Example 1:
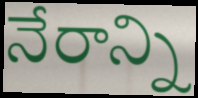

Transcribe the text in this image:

నేరాన్ని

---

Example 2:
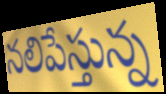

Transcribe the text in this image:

నలిపేస్తున్న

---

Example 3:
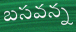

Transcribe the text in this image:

బసవన్న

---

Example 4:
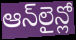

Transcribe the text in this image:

ఆన్‌లైన్లో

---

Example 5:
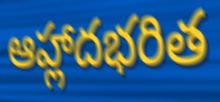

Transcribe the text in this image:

ఆహ్లాదభరిత